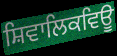
ਸ਼ਿਵਾਲਿਕਵਿਊ